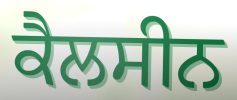
ਕੈਲਸੀਨ